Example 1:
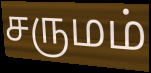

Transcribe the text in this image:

சருமம்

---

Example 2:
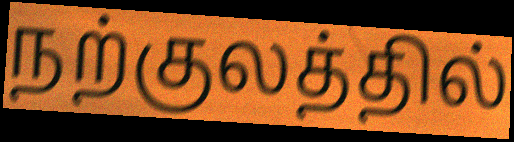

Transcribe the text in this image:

நற்குலத்தில்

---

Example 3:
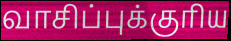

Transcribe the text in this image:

வாசிப்புக்குரிய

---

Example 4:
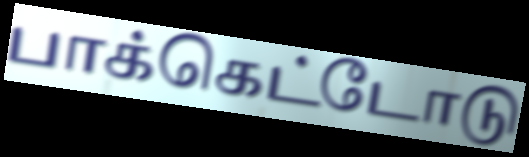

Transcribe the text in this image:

பாக்கெட்டோடு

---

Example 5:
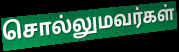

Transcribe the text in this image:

சொல்லுமவர்கள்